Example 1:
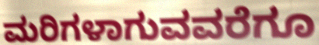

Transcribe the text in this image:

ಮರಿಗಳಾಗುವವರೆಗೂ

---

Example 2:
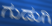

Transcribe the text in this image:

ಗುಡುಗಿ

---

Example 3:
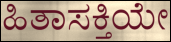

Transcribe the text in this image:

ಹಿತಾಸಕ್ತಿಯೇ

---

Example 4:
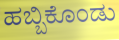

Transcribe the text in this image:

ಹಬ್ಬಿಕೊಂಡು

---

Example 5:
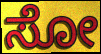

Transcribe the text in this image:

ಸೋ